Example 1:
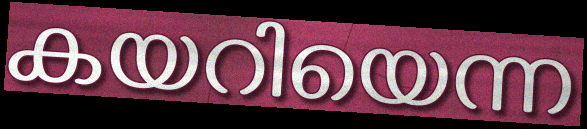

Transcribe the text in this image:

കയറിയെന്ന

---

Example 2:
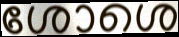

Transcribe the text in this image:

ശോശെ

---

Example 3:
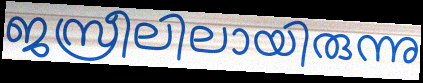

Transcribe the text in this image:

ജസ്രീലിലായിരുന്നു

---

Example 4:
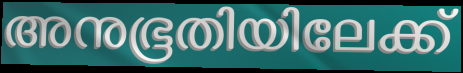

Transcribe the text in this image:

അനുഭൂതിയിലേക്ക്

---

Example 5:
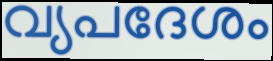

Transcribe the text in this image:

വ്യപദേശം